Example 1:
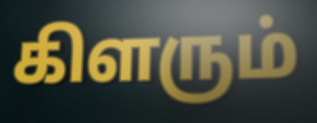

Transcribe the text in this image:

கிளரும்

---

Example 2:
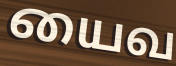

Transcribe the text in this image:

யைவ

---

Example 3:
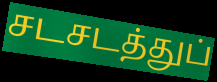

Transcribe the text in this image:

சடசடத்துப்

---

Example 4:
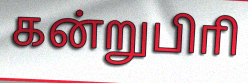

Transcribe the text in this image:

கன்றுபிரி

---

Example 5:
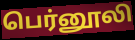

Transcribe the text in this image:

பெர்னூலி